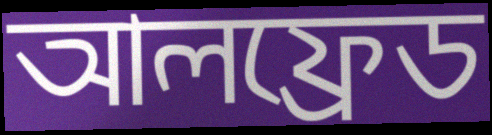
আলফ্রেড